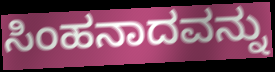
ಸಿಂಹನಾದವನ್ನು